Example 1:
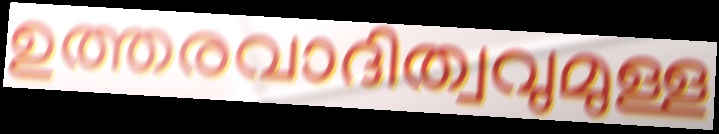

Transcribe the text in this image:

ഉത്തരവാദിത്വവുമുള്ള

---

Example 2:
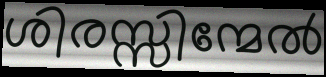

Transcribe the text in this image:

ശിരസ്സിന്മേൽ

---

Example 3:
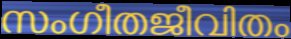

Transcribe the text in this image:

സംഗീതജീവിതം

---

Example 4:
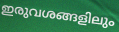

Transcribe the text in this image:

ഇരുവശങ്ങളിലും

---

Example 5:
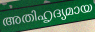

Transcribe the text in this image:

അതിഹൃദ്യമായ